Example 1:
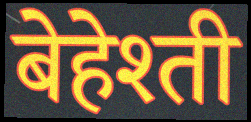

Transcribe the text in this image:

बेहेश्ती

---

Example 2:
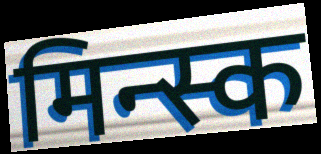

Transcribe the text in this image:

मिन्स्क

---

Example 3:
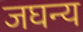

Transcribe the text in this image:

जघन्‍य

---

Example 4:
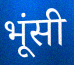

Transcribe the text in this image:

भूंसी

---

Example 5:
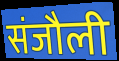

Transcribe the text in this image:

संजौली